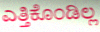
ಎತ್ತಿಕೊಂಡಿಲ್ಲ